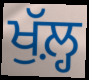
ਖੁੱਲ਼੍ਹ